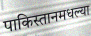
पाकिस्तानमधल्या